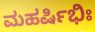
ಮಹರ್ಷಿಭಿಃ